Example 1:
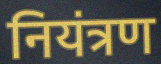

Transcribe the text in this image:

नियंत्रण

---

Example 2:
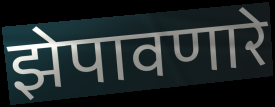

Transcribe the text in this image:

झेपावणारे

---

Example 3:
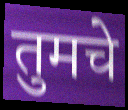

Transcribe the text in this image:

तुमचे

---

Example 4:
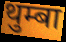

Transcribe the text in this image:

थुम्बा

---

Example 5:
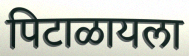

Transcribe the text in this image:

पिटाळायला